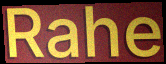
Rahe